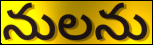
నులను